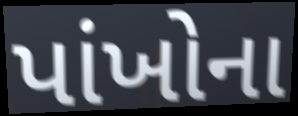
પાંખોના